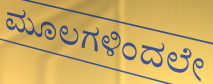
ಮೂಲಗಳಿಂದಲೇ